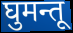
घुमन्तू